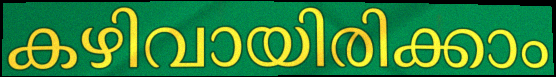
കഴിവായിരിക്കാം